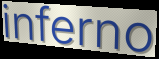
inferno